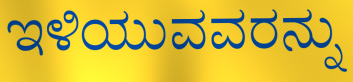
ಇಳಿಯುವವರನ್ನು